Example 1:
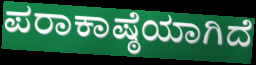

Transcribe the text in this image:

ಪರಾಕಾಷ್ಠೆಯಾಗಿದೆ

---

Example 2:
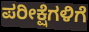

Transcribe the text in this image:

ಪರೀಕ್ಷೆಗಳಿಗೆ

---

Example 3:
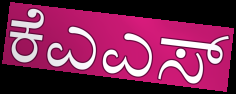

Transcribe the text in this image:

ಕೆಎಎಸ್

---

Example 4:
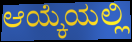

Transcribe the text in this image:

ಆಯ್ಕೆಯಲ್ಲಿ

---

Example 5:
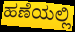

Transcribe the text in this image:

ಹಣೆಯಲ್ಲಿ